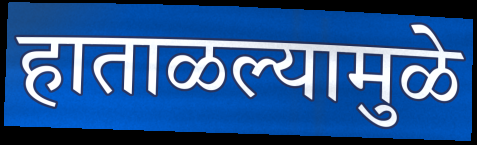
हाताळल्यामुळे